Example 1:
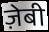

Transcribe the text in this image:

ज़ेबी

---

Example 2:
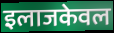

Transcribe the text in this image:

इलाजकेवल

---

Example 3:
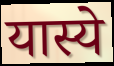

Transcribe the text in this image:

यास्ये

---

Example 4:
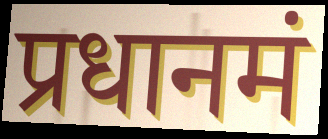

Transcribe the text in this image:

प्रधानमं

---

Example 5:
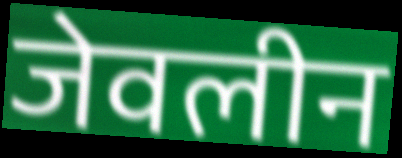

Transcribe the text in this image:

जेवलीन